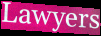
Lawyers